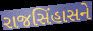
રાજસિંહાસને